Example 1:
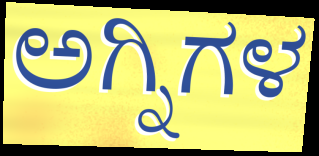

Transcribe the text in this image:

ಅಗ್ನಿಗಳ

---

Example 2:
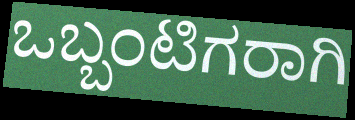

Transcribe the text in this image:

ಒಬ್ಬಂಟಿಗರಾಗಿ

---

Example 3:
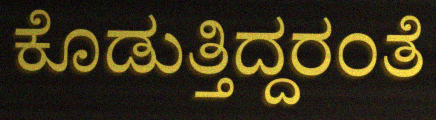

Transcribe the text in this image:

ಕೊಡುತ್ತಿದ್ದರಂತೆ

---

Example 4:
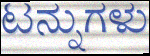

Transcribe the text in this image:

ಟನ್ನುಗಳು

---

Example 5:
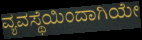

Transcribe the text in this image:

ವ್ಯವಸ್ಥೆಯಿಂದಾಗಿಯೇ